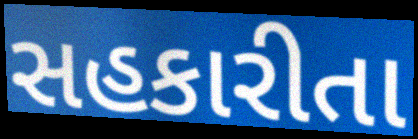
સહકારીતા